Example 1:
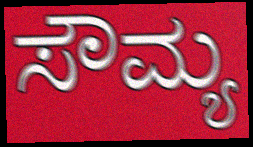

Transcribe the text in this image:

ಸೌಮ್ಯ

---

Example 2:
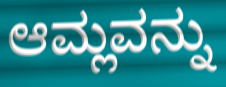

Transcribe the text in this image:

ಆಮ್ಲವನ್ನು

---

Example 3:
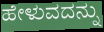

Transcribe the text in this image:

ಹೇಳುವದನ್ನು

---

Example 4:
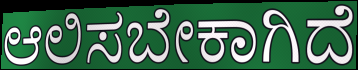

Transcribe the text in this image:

ಆಲಿಸಬೇಕಾಗಿದೆ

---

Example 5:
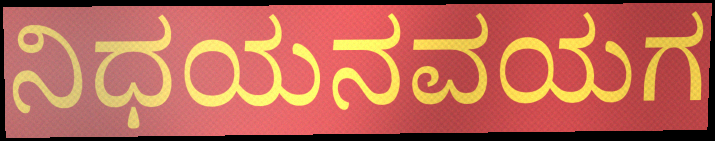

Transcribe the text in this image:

ನಿಧಯನವಯಗ